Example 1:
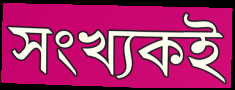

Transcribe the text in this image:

সংখ্যকই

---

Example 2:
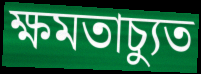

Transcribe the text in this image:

ক্ষমতাচ্যুত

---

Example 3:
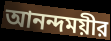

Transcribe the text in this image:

আনন্দময়ীর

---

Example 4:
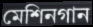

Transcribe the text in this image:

মেশিনগান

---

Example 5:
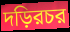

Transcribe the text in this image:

দড়িরচর